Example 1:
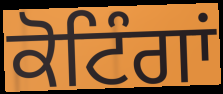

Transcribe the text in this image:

ਕੋਟਿੰਗਾਂ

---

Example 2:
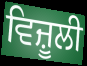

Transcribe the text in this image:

ਵਿਜ਼ੂਲੀ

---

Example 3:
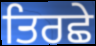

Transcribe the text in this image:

ਤਿਰਛੇ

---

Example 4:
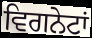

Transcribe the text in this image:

ਵਿਗਨੇਟਾਂ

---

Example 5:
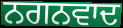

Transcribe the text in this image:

ਨਗਨਵਾਦ